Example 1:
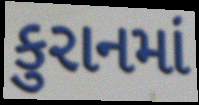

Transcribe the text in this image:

કુરાનમાં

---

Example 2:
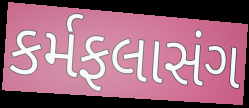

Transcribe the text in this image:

કર્મફલાસંગ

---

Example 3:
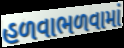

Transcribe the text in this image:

હળવાભળવામાં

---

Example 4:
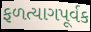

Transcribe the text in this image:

ફળત્યાગપૂર્વક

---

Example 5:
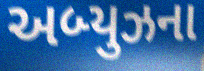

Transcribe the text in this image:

અબ્યુઝના